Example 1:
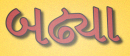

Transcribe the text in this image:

બઢ્યા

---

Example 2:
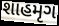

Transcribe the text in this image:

શાહમૃગ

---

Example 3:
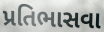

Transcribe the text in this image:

પ્રતિભાસવા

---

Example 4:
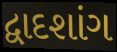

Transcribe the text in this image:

દ્વાદશાંગ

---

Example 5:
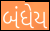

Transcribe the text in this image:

બંધેય